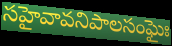
సహైవావనిపాలసంఘైః